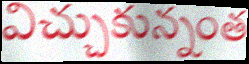
విచ్చుకున్నంత